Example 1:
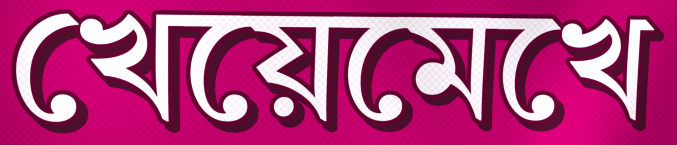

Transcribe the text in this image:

খেয়েমেখে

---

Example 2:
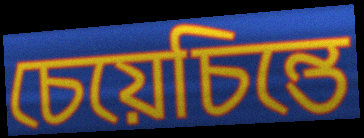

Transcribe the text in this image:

চেয়েচিন্তে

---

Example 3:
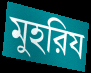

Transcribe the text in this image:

মুহরিয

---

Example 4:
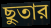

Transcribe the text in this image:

ছুতার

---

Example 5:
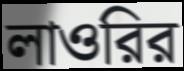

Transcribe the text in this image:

লাওরির